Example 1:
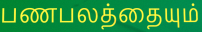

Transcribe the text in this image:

பணபலத்தையும்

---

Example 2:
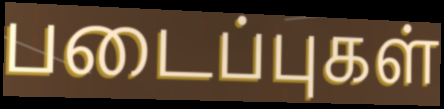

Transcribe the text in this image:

படைப்புகள்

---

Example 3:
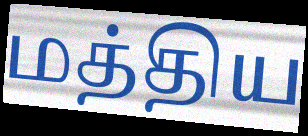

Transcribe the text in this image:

மத்திய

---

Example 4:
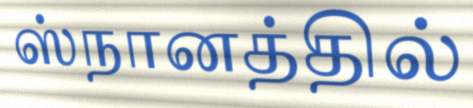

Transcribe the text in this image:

ஸ்நானத்தில்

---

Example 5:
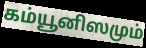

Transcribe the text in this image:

கம்யூனிஸமும்